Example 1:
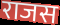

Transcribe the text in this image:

राजस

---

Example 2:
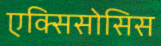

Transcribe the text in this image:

एक्सिसोसिस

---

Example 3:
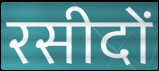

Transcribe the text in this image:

रसीदों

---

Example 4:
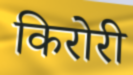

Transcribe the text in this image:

किरोरी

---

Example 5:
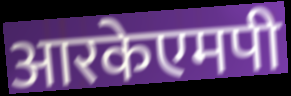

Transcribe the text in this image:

आरकेएमपी